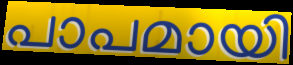
പാപമായി